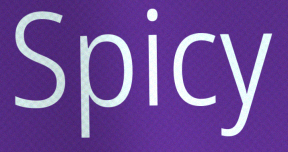
Spicy